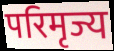
परिमृज्य